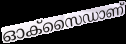
ഓക്സൈഡാണ്